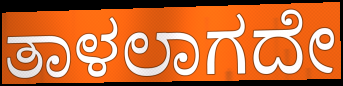
ತಾಳಲಾಗದೇ